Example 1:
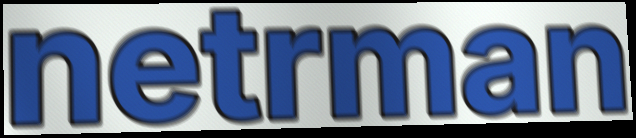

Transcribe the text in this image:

netrman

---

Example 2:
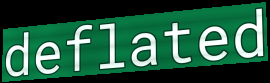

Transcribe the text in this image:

deflated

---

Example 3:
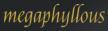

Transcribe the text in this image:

megaphyllous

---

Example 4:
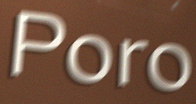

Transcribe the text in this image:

Poro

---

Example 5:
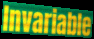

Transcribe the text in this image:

Invariable